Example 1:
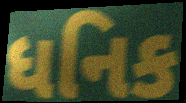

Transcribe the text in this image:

ધનિક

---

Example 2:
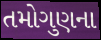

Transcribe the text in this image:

તમોગુણના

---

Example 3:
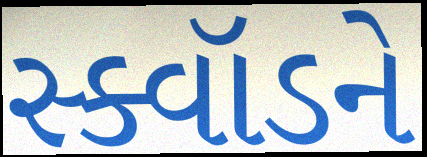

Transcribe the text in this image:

સ્ક્વૉડને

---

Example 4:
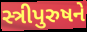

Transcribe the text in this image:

સ્ત્રીપુરુષને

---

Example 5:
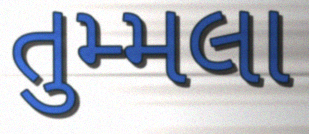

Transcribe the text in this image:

તુમ્મલા